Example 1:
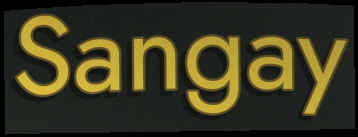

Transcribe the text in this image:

Sangay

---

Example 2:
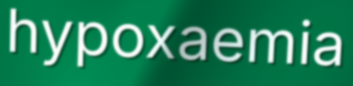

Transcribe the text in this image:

hypoxaemia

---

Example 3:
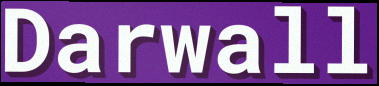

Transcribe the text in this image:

Darwall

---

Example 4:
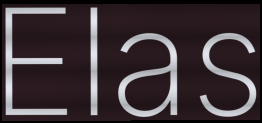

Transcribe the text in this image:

Elas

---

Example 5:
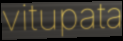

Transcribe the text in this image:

vitupata